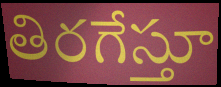
తిరగేస్తూ